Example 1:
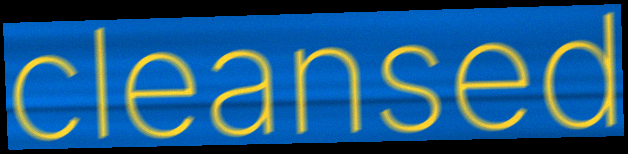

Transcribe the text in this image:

cleansed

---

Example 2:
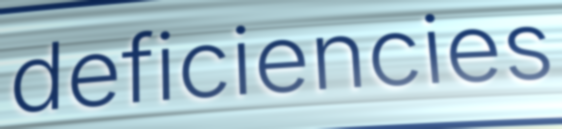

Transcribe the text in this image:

deficiencies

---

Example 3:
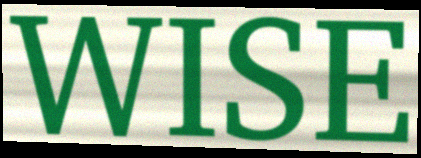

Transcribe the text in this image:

WISE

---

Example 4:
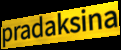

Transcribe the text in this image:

pradaksina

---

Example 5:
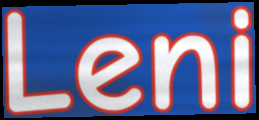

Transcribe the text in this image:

Leni